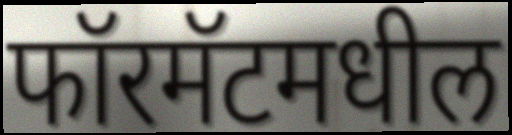
फॉरमॅटमधील